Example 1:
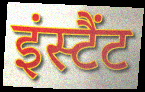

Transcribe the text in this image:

इंस्टैंट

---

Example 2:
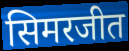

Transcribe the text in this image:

सिमरजीत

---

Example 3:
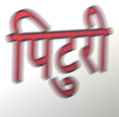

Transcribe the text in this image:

पिटुरी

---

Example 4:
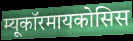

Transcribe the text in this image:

म्यूकॉरमायकोसिस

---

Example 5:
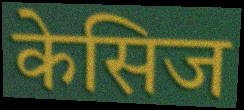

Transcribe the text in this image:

केसिज